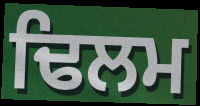
ਢਿਲਮ